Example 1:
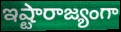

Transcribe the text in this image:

ఇష్టారాజ్యంగా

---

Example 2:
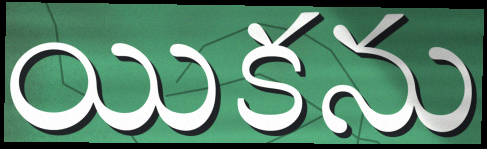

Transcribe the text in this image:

యికను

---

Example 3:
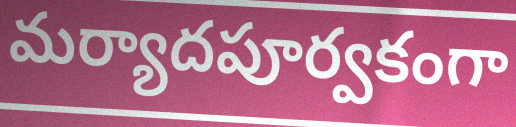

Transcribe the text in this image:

మర్యాదపూర్వకంగా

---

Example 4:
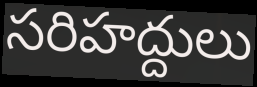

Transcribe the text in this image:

సరిహద్దులు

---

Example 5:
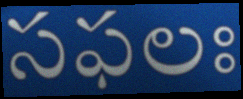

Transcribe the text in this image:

సఫలః